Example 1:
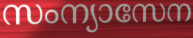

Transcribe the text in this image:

സംന്യാസേന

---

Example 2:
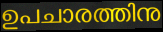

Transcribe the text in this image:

ഉപചാരത്തിനു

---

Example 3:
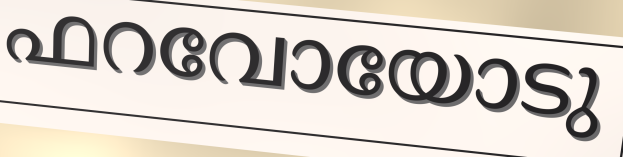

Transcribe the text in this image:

ഫറവോയോടു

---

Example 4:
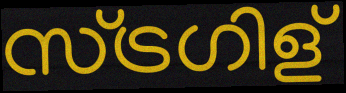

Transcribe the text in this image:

സ്ട്രഗിള്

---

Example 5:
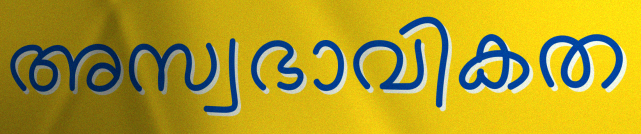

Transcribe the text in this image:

അസ്വഭാവികത